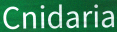
Cnidaria